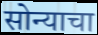
सोन्याचा